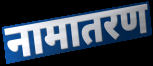
नामातरण